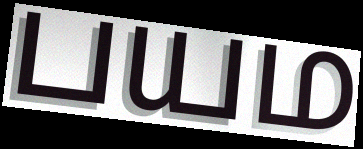
பயம